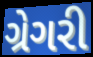
ગ્રેગરી